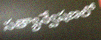
సత్యాన్వేషణలో